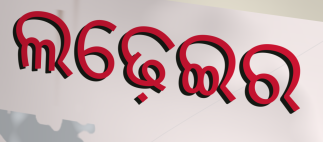
ଲଢ଼େଇର